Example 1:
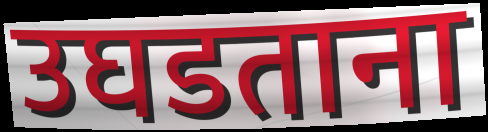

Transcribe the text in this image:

उघडताना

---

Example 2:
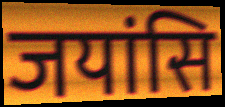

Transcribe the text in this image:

जयांसि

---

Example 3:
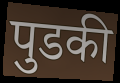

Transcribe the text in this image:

पुडकी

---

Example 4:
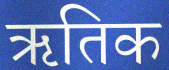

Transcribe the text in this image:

ऋतिक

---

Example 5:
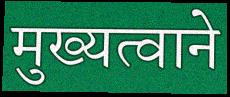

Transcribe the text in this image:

मुख्यत्वाने